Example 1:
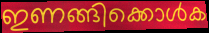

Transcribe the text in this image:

ഇണങ്ങിക്കൊൾക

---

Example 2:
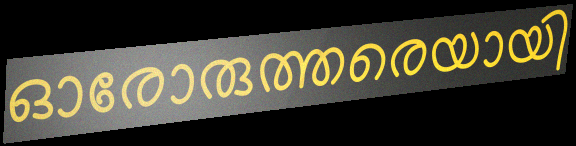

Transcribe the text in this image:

ഓരോരുത്തരെയായി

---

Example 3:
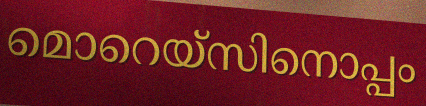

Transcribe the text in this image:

മൊറെയ്സിനൊപ്പം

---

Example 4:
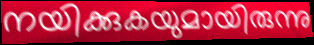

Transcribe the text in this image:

നയിക്കുകയുമായിരുന്നു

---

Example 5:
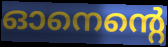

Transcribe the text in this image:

ഓനെന്റെ